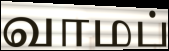
வாமப்